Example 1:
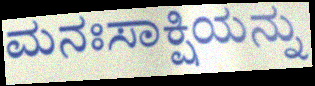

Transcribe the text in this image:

ಮನಃಸಾಕ್ಷಿಯನ್ನು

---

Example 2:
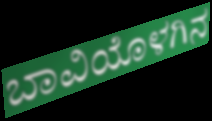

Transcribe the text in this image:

ಬಾವಿಯೊಳಗಿನ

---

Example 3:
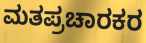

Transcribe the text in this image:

ಮತಪ್ರಚಾರಕರ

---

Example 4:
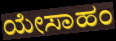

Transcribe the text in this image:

ಯೇಸಾಹಂ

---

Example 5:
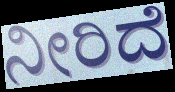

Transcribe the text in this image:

ನೀರಿದೆ